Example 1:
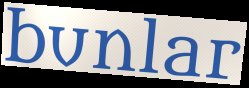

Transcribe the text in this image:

bunlar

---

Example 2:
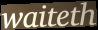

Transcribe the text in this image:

waiteth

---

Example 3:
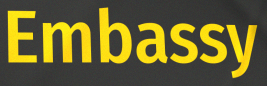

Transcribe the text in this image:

Embassy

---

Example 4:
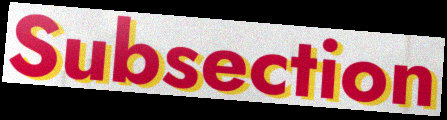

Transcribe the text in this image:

Subsection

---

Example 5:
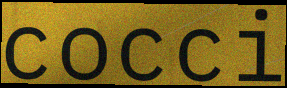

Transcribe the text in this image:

cocci